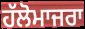
ਹੱਲੋਮਾਜਰਾ